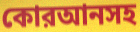
কোরআনসহ